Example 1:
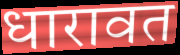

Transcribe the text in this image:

धारावत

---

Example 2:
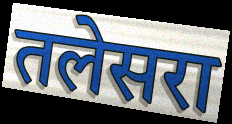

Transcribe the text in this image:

तलेसरा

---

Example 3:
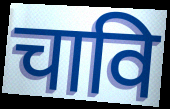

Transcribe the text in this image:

चावि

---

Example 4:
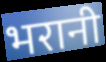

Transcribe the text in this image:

भरानी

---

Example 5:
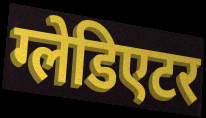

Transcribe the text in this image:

ग्लेडिएटर